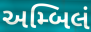
અમ્બિલં